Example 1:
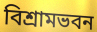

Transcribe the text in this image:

বিশ্রামভবন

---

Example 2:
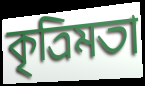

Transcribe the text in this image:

কৃত্রিমতা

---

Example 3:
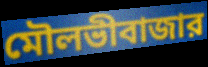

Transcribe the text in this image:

মৌলভীবাজার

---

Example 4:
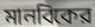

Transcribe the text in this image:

মানবিকের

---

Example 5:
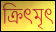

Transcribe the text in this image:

ক্রিৎমৃৎ